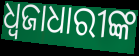
ଧ୍ଵଜାଧାରୀଙ୍କ